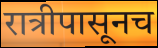
रात्रीपासूनच